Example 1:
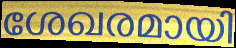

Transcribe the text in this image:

ശേഖരമായി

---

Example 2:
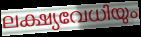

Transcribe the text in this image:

ലക്ഷ്യവേധിയും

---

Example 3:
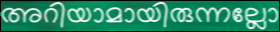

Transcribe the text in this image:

അറിയാമായിരുന്നല്ലോ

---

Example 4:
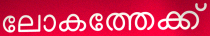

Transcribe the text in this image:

ലോകത്തേക്ക്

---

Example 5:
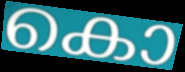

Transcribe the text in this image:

കൊ